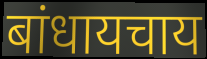
बांधायचाय